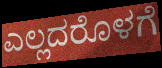
ಎಲ್ಲದರೊಳಗೆ